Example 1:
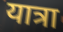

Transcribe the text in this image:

यात्रा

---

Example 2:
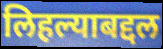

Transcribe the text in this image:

लिहल्याबद्दल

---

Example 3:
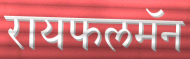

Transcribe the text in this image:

रायफलमॅन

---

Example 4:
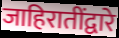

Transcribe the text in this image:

जाहिरातींद्वारे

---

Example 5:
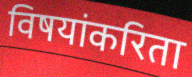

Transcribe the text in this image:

विषयांकरिता